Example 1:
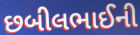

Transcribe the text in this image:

છબીલભાઈની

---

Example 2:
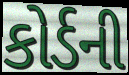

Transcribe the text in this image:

કોર્ડની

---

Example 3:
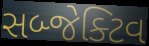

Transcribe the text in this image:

સબ્જેક્ટિવ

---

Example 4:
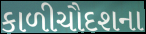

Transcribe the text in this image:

કાળીચૌદશના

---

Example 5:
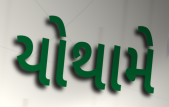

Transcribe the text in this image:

યોથામે